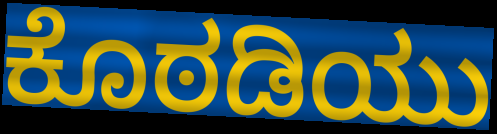
ಕೊಠಡಿಯು